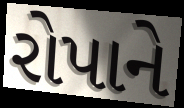
રોપાને